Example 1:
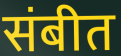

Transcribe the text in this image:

संबीत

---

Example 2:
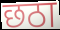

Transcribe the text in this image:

छठा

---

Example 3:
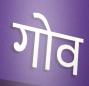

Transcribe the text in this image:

गोव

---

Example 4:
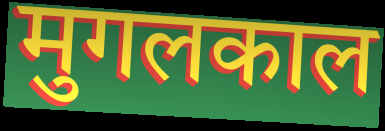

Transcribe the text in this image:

मुगलकाल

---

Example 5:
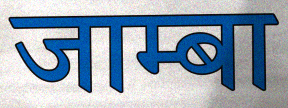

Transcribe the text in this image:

जाम्बा